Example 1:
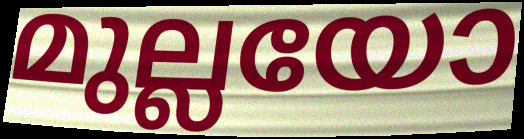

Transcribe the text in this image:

മുല്ലയോ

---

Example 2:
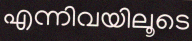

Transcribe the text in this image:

എന്നിവയിലൂടെ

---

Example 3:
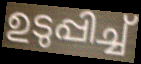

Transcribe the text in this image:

ഉടുപ്പിച്ച്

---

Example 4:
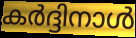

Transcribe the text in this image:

കർദ്ദിനാൾ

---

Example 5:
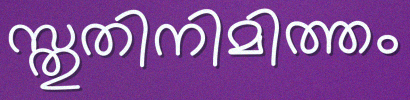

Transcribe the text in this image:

സ്തുതിനിമിത്തം